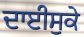
ਦਾਈਸੁਕੇ